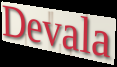
Devala